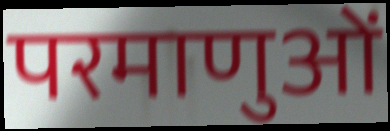
परमाणुओं